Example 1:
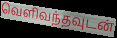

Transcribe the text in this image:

வெளிவந்தவுடன்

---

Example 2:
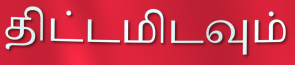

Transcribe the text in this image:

திட்டமிடவும்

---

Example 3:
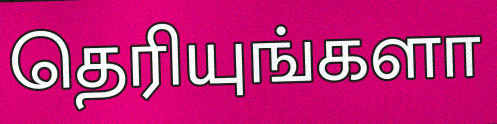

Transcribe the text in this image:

தெரியுங்களா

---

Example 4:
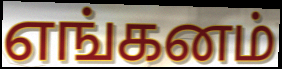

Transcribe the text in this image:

எங்கனம்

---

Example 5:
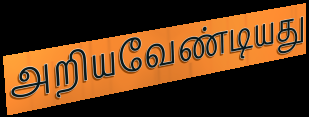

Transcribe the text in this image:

அறியவேண்டியது